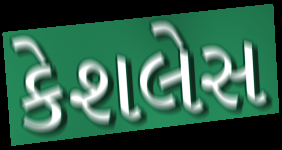
કેશલેસ